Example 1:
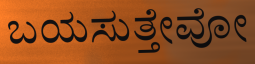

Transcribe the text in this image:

ಬಯಸುತ್ತೇವೋ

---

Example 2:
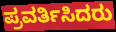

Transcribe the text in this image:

ಪ್ರವರ್ತಿಸಿದರು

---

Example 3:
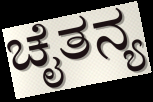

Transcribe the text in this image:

ಚೈತನ್ಯ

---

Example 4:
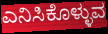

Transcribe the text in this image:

ಎನಿಸಿಕೊಳ್ಳುವ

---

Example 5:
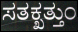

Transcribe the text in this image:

ಸತಕ್ಖತ್ತುಂ